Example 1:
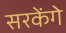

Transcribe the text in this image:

सरकेंगे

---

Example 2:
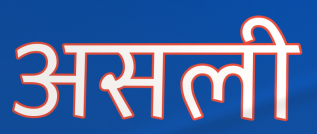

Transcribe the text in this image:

असली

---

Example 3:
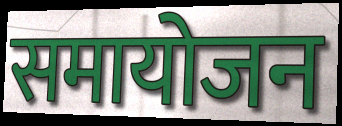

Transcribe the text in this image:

समायोजन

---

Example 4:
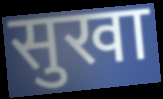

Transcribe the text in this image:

सुखा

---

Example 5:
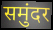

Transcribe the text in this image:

समुंदर